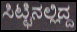
ಸಿಟ್ಟಿನಲ್ಲಿದ್ದ